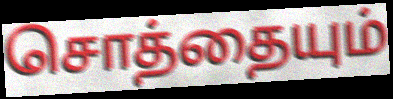
சொத்தையும்